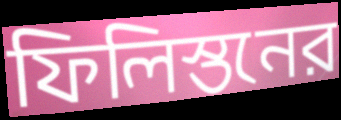
ফিলিস্তনের